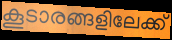
കൂടാരങ്ങളിലേക്ക്